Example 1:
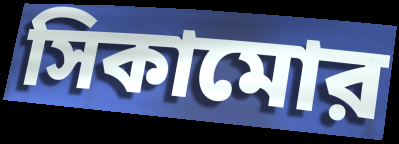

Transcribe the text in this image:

সিকামোর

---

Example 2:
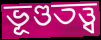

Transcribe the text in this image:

ভূণ্ডতত্ত্ব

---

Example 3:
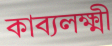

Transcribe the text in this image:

কাব্যলক্ষ্মী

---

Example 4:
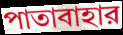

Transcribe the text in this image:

পাতাবাহার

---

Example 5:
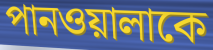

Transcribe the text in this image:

পানওয়ালাকে